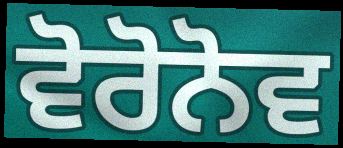
ਵੋਰੋਨੋਵ